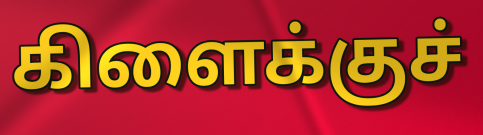
கிளைக்குச்